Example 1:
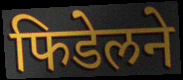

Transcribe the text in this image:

फिडेलने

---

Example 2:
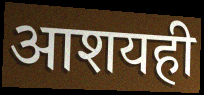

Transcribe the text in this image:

आशयही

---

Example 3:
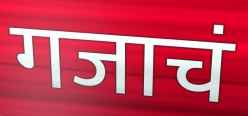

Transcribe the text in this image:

गजाचं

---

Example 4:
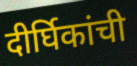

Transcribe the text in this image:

दीर्घिकांची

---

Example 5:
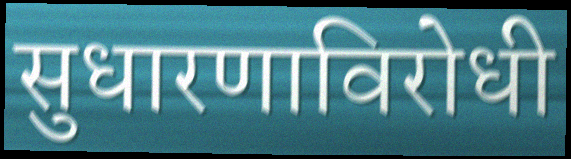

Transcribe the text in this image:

सुधारणाविरोधी